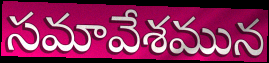
సమావేశమున